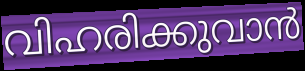
വിഹരിക്കുവാൻ